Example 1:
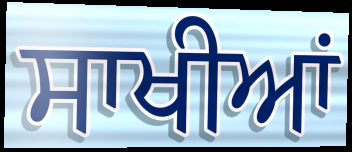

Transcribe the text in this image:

ਸਾਖੀਆਂ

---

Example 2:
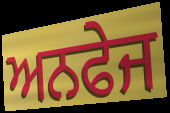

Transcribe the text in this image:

ਅਨਫੇਜ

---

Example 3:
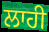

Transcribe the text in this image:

ਲਾਹੀ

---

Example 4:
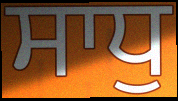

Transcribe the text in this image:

ਸਾਧੁ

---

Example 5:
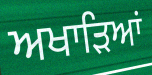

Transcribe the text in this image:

ਅਖਾੜਿਆਂ